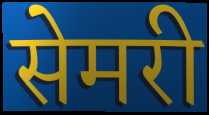
सेमरी